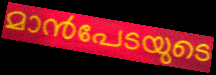
മാൻപേടയുടെ